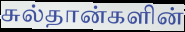
சுல்தான்களின்